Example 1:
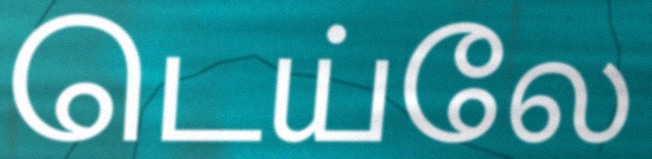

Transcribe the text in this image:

டெய்லே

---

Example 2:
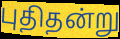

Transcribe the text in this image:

புதிதன்று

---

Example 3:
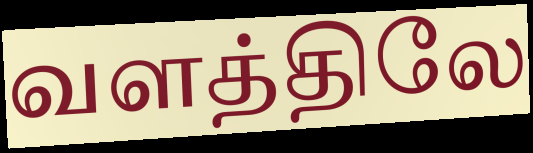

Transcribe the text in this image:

வளத்திலே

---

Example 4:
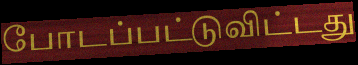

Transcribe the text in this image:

போடப்பட்டுவிட்டது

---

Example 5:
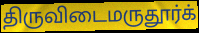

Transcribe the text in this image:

திருவிடைமருதூர்க்